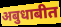
अबुधाबीत